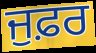
ਜੁਫ਼ਰ